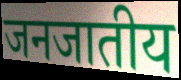
जनजातीय